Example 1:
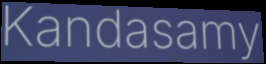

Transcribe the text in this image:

Kandasamy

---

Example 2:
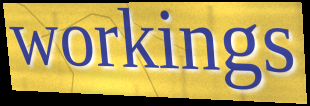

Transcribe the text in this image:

workings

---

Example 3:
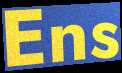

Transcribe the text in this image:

Ens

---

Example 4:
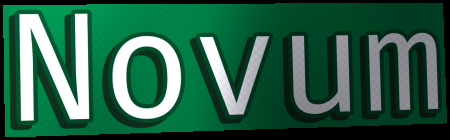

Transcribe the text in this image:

Novum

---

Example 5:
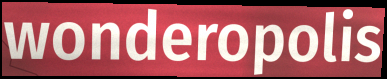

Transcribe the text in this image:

wonderopolis